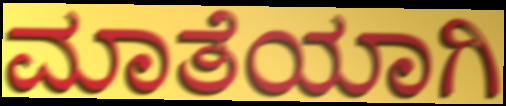
ಮಾತೆಯಾಗಿ